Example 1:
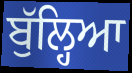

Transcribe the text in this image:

ਬੁੱਲ੍ਹਿਆ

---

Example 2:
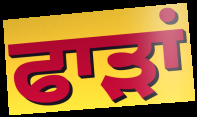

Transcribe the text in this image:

ਫਾੜਾਂ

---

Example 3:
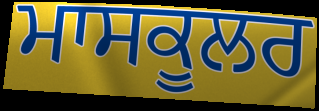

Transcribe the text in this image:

ਮਾਸਕੂਲਰ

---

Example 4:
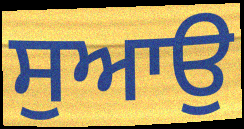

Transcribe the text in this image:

ਸੁਆਉ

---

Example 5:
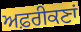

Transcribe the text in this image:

ਅਫ਼ਰੀਕਣਾਂ